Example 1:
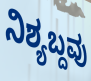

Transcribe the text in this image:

ನಿಶ್ಯಬ್ದವು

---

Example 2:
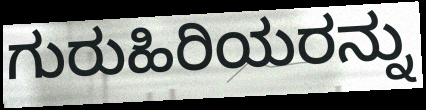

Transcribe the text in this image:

ಗುರುಹಿರಿಯರನ್ನು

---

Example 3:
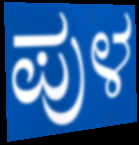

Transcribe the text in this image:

ಪುಳ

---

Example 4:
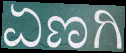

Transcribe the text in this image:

ಏಣಗಿ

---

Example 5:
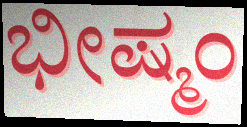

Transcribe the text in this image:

ಭೀಷ್ಮಂ